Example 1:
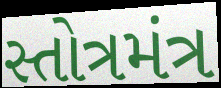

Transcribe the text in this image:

સ્તોત્રમંત્ર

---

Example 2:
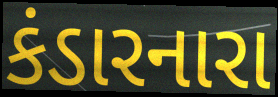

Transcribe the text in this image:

કંડારનારા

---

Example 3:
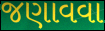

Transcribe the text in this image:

જણાવવા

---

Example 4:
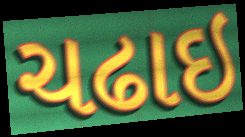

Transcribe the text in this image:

ચઢાઇ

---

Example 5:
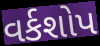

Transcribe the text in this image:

વર્કશોપ